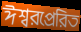
ঈশ্বরপ্রেরিত